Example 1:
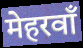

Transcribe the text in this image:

मेहरवाँ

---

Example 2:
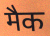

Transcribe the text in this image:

मैक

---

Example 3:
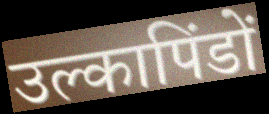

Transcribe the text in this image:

उल्कापिंडों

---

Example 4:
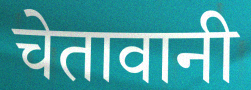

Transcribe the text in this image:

चेतावानी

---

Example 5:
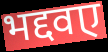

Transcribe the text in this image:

भद्दवए